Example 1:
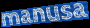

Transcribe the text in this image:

manusa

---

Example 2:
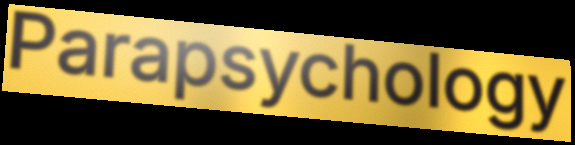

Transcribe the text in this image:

Parapsychology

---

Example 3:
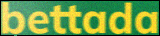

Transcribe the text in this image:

bettada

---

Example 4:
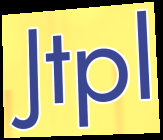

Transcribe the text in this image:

Jtpl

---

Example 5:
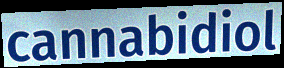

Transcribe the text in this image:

cannabidiol